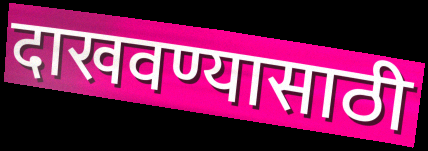
दाखवण्यासाठी